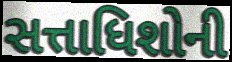
સત્તાધિશોની